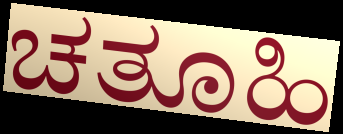
ಚತೂಹಿ